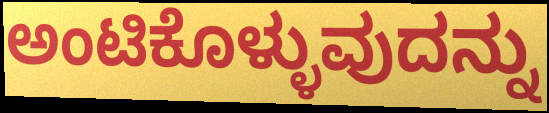
ಅಂಟಿಕೊಳ್ಳುವುದನ್ನು